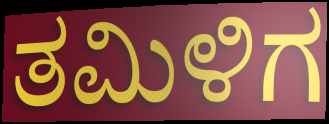
ತಮಿಳಿಗ